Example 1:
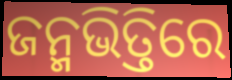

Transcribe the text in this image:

ଜନ୍ମଭିତ୍ତିରେ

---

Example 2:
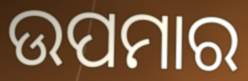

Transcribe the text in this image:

ଉପମାର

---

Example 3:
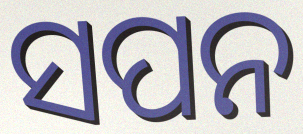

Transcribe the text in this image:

ସପନ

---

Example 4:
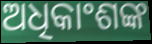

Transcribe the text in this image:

ଅଧିକାଂଶଙ୍କ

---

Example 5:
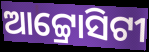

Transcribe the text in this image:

ଆଟ୍ଟ୍ରୋସିଟୀ